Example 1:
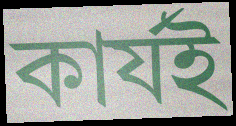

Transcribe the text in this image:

কাৰ্যই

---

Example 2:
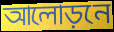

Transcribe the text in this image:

আলোড়নে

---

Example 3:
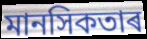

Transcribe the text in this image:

মানসিকতাৰ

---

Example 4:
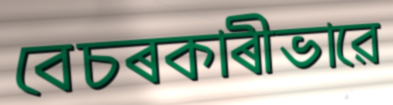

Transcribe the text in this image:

বেচৰকাৰীভাৱে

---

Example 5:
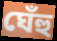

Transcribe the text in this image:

ঘেঁহু